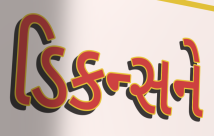
ડિકન્સને